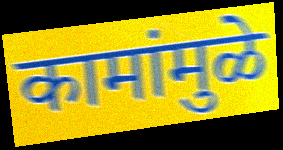
कामांमुळे